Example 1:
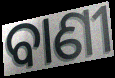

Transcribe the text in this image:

ବାଣୀ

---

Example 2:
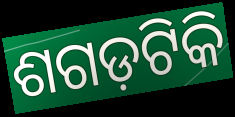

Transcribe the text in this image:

ଶଗଡ଼ଟିକି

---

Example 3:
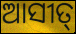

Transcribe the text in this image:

ଆସୀତ୍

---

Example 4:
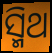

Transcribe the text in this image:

ସ୍ମିଥ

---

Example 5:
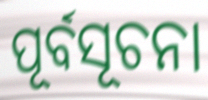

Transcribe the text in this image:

ପୂର୍ବସୂଚନା